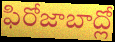
ఫిరోజాబాద్లో